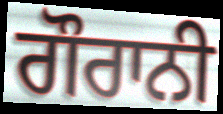
ਗੌਰਾਨੀ